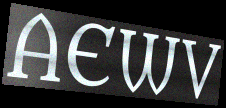
AEWV